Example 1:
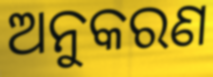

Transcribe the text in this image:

ଅନୁକରଣ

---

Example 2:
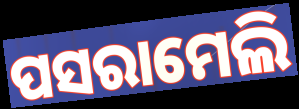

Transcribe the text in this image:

ପସରାମେଲି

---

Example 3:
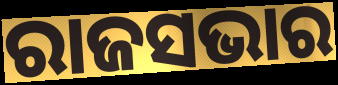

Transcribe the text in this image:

ରାଜସଭାର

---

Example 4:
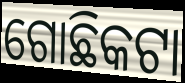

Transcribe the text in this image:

ଗୋଛିକଟା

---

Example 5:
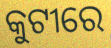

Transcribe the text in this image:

କୁଟୀରେ